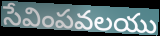
సేవింపవలయు